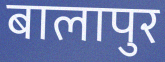
बालापुर